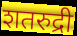
शतरुद्री